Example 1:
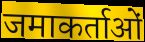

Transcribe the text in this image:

जमाकर्ताओं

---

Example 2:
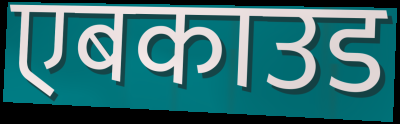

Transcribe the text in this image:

एबकाउड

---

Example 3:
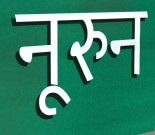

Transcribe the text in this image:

नूरुन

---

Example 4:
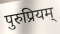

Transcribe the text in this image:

पुरुप्रियम्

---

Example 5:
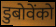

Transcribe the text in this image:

डुबोवेंको